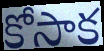
కోసాక